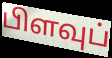
பிளவுப்